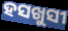
ହସଖୁସୀ